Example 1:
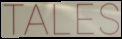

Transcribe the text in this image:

TALES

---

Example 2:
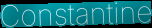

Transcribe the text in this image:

Constantine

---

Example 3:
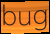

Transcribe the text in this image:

bug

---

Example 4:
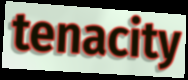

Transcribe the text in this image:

tenacity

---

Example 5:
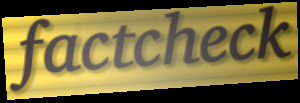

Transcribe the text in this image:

factcheck